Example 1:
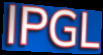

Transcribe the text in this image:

IPGL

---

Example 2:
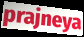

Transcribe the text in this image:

prajneya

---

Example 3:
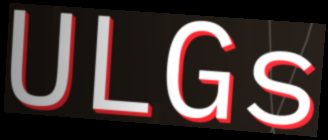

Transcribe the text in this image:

ULGs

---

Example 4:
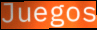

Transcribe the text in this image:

Juegos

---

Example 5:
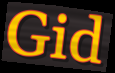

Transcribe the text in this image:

Gid